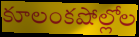
కూలంకషోల్లోల